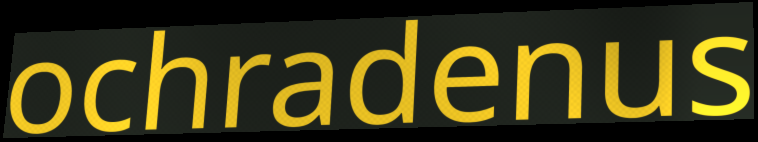
ochradenus